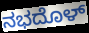
ನಭದೊಳ್